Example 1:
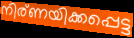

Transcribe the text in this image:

നിര്ണയിക്കപ്പെട്ട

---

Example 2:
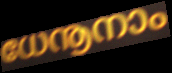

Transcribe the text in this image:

ധേനൂനാം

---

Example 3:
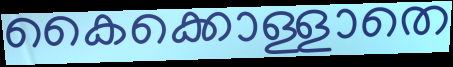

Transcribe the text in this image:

കൈക്കൊള്ളാതെ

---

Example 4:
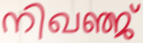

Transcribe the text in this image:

നിഖഞ്ജ്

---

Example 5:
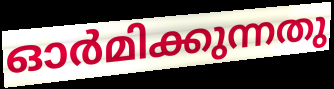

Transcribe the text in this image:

ഓർമിക്കുന്നതു